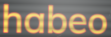
habeo